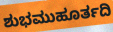
ಶುಭಮುಹೂರ್ತದಿ